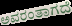
ಅವರಂತಾಗದೆ